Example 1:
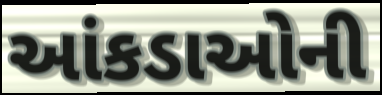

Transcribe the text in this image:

આંકડાઓની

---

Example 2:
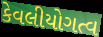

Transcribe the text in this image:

કેવલીયોગત્વ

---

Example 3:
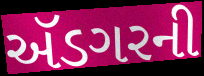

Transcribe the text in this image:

ઍડગરની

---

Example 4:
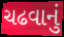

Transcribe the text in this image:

ચઢવાનું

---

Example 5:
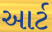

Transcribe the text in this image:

આર્ટ